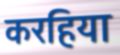
करहिया